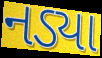
નડ્યા